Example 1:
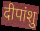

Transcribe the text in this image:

दीपांशु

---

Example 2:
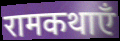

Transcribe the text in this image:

रामकथाएँ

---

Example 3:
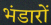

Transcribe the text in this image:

भंडारों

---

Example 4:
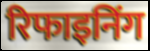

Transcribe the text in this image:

रिफाइनिंग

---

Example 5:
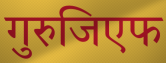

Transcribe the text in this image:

गुरुजिएफ